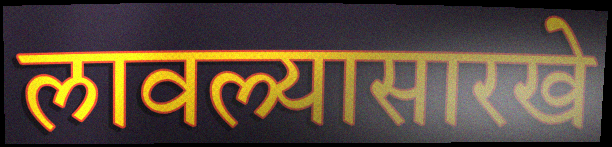
लावल्यासारखे